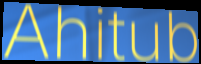
Ahitub